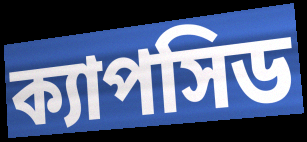
ক্যাপসিড